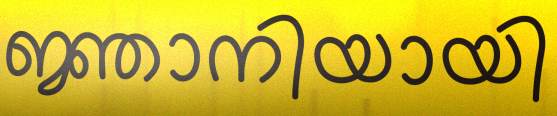
ജ്ഞാനിയായി